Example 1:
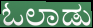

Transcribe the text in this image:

ಓಲಾಡು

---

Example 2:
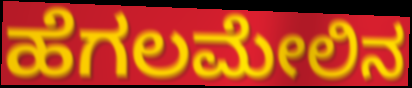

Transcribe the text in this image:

ಹೆಗಲಮೇಲಿನ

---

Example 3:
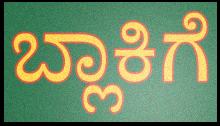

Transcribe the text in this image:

ಬ್ಲಾಕಿಗೆ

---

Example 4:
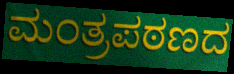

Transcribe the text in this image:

ಮಂತ್ರಪಠಣದ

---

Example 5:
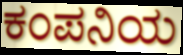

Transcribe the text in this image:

ಕಂಪನಿಯ